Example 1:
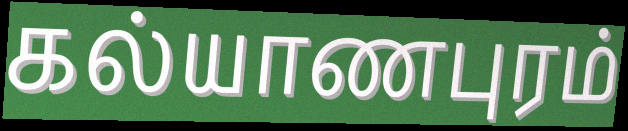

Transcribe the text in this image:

கல்யாணபுரம்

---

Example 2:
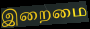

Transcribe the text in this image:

இறைமை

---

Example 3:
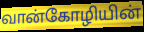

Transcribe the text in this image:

வான்கோழியின்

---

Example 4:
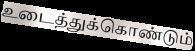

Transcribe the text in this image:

உடைத்துக்கொண்டும்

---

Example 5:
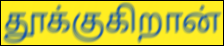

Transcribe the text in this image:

தூக்குகிறான்